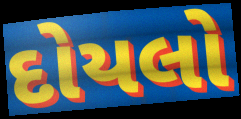
દોયલો